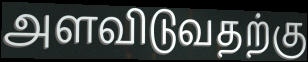
அளவிடுவதற்கு